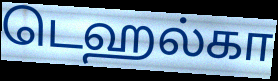
டெஹல்கா